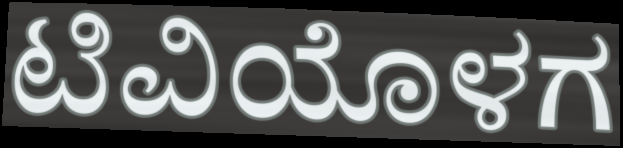
ಟಿವಿಯೊಳಗ